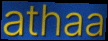
athaa